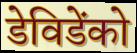
डेविडेंको